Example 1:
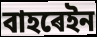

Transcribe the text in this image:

বাহৰেইন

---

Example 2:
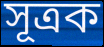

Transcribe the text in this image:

সূত্ৰক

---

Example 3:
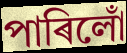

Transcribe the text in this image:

পাৰিলোঁ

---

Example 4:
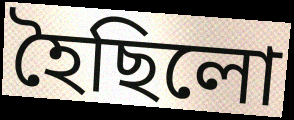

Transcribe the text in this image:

হৈছিলো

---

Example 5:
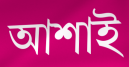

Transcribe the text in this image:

আশাই